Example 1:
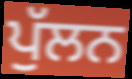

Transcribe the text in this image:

ਪੁੱਲਨ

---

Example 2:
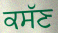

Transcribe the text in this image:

ਕਸੱਣ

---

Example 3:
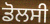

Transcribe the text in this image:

ਡੋਲਸੀ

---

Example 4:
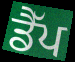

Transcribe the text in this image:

ਡੈੱਪ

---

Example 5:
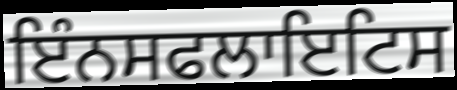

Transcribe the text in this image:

ਇੰਨਸਫਲਾਇਟਿਸ